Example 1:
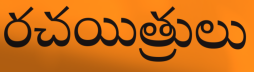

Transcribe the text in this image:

రచయిత్రులు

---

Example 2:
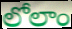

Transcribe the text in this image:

లోలాం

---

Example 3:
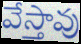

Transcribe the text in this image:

వేస్తావు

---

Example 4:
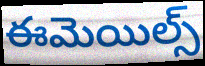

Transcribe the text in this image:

ఈమెయిల్స్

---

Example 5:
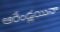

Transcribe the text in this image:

ఆరేండ్లయినా